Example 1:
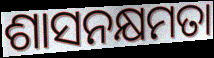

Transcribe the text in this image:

ଶାସନକ୍ଷମତା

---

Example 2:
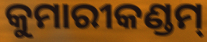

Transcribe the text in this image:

କୁମାରୀକଣ୍ଡମ୍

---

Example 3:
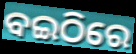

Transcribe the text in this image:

ବଇଠିରେ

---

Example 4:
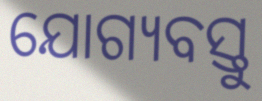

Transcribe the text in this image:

ଯୋଗ୍ୟବସ୍ତୁ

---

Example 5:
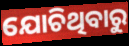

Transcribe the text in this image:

ଯୋଚିଥିବାରୁ